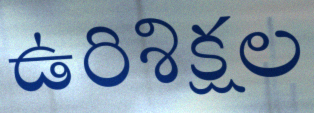
ఉరిశిక్షల